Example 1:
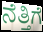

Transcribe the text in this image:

ನೆತ್ತಿಗೆ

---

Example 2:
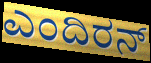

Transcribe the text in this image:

ಎಂದಿರನ್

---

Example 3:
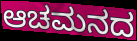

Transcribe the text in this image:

ಆಚಮನದ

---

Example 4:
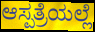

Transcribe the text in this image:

ಆಸ್ಪತ್ರೆಯಲ್ಲೆ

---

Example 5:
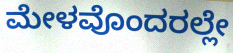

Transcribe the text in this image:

ಮೇಳವೊಂದರಲ್ಲೇ